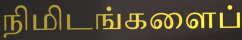
நிமிடங்களைப்